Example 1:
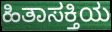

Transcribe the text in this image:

ಹಿತಾಸಕ್ತಿಯ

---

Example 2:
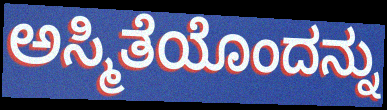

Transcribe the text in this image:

ಅಸ್ಮಿತೆಯೊಂದನ್ನು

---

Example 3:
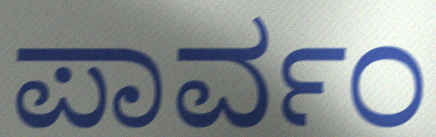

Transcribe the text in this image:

ಪಾರ್ವಂ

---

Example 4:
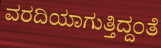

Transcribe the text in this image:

ವರದಿಯಾಗುತ್ತಿದ್ದಂತೆ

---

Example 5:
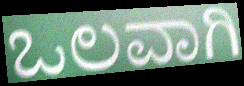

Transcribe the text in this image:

ಒಲವಾಗಿ